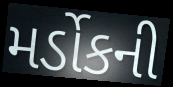
મર્ડોકની